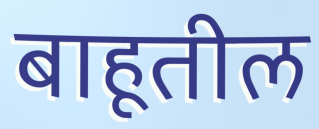
बाहूतील